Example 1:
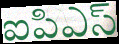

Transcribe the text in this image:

ఐపిఎస్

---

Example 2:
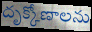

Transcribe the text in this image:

దృక్కోణాలను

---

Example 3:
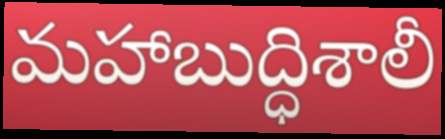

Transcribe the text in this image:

మహాబుద్ధిశాలీ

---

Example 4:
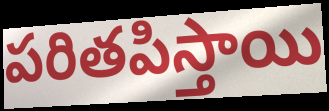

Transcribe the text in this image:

పరితపిస్తాయి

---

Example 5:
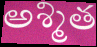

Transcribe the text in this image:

అశ్మిత